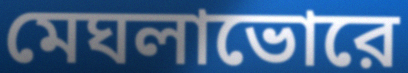
মেঘলাভোরে